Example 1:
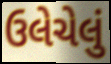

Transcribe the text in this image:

ઉલેચેલું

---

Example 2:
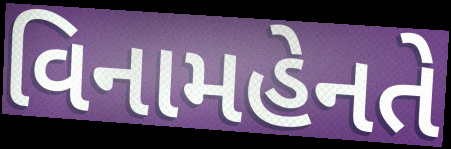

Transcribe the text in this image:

વિનામહેનતે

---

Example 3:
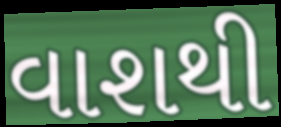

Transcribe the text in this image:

વાશથી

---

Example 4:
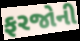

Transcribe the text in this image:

ફરજોની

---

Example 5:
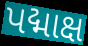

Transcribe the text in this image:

પદ્માક્ષ